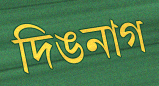
দিঙনাগ